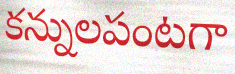
కన్నులపంటగా